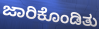
ಜಾರಿಕೊಂಡಿತು